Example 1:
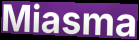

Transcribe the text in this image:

Miasma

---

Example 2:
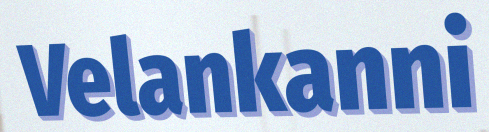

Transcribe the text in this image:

Velankanni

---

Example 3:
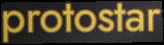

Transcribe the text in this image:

protostar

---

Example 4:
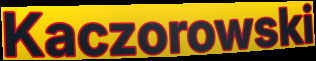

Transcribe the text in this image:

Kaczorowski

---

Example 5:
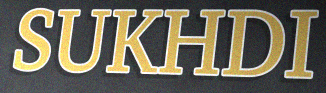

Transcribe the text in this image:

SUKHDI